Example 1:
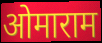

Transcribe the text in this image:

ओमाराम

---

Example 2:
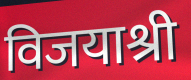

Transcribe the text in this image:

विजयाश्री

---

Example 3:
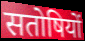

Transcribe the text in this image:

सतोषियों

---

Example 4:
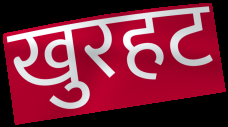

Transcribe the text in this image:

खुरहट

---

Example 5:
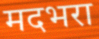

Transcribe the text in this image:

मदभरा